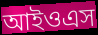
আইওএস